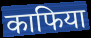
काफिया